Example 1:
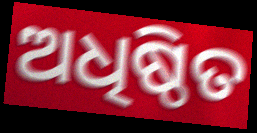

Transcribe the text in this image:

ଅଧିଷ୍ଠିତ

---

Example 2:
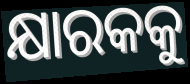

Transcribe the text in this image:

କ୍ଷାରକକୁ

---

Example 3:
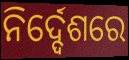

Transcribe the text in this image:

ନିର୍ଦ୍ଦେଶରେ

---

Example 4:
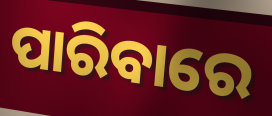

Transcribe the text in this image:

ପାରିବାରେ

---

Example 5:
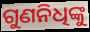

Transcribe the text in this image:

ଗୁଣନିଧିଙ୍କୁ